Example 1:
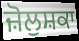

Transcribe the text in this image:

ਜ਼ੋਲੁਸ਼ਕਾ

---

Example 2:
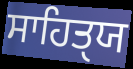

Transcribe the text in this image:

ਸਾਹਿਤੑਯ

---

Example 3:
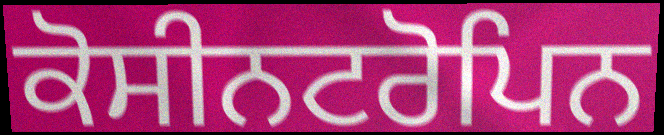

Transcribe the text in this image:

ਕੋਸੀਨਟਰੋਪਿਨ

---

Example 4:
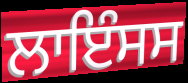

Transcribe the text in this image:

ਲਾਇੰਸਸ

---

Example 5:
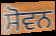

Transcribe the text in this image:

ਸੋਵਨ